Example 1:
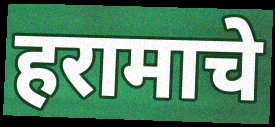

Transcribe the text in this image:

हरामाचे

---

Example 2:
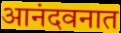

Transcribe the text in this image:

आनंदवनात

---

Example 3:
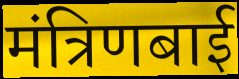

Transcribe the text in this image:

मंत्रिणबाई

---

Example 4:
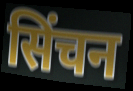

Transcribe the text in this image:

सिंचन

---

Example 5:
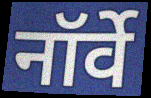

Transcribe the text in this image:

नॉर्वे